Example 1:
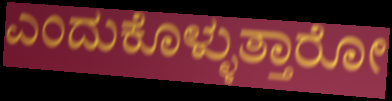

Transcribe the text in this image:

ಎಂದುಕೊಳ್ಳುತ್ತಾರೋ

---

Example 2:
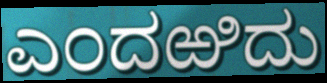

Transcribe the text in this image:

ಎಂದಱಿದು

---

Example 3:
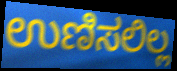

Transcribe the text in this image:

ಉಣಿಸಲಿಲ್ಲ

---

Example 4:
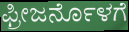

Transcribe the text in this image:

ಫ್ರೀಜರ್ನೊಳಗೆ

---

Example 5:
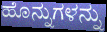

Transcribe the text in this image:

ಹೊನ್ನುಗಳನ್ನು